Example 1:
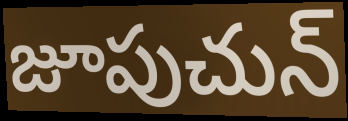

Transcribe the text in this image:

జూపుచున్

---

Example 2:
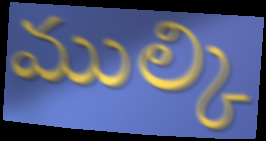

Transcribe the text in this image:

ముల్కి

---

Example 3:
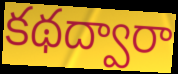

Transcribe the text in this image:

కథద్వారా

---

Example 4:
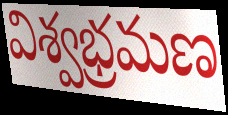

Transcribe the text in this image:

విశ్వభ్రమణ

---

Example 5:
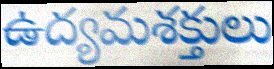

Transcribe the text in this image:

ఉద్యమశక్తులు